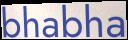
bhabha